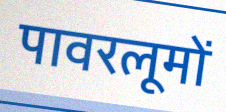
पावरलूमों